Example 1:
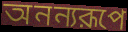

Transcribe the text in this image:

অনন্যরূপে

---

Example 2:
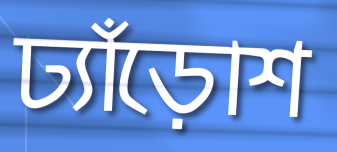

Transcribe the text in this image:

ঢ্যাঁড়োশ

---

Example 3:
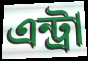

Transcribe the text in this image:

এন্ট্রা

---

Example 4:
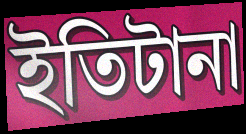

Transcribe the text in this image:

ইতিটানা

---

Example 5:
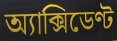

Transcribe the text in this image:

অ্যাক্সিডেণ্ট